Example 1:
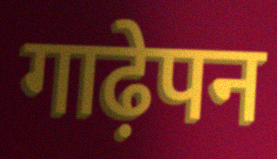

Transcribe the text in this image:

गाढ़ेपन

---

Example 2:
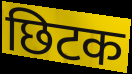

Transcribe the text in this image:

छिटक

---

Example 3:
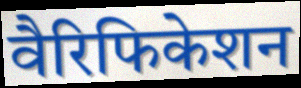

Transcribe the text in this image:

वैरिफिकेशन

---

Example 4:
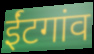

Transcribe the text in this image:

ईंटगांव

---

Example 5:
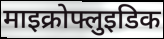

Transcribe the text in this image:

माइक्रोफ्लुइडिक